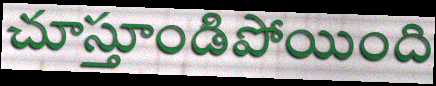
చూస్తూండిపోయింది